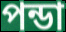
পন্ডা